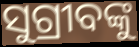
ସୁଗ୍ରୀବଙ୍କୁ